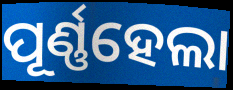
ପୂର୍ଣ୍ଣହେଲା